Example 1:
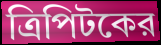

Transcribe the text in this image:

ত্রিপিটকের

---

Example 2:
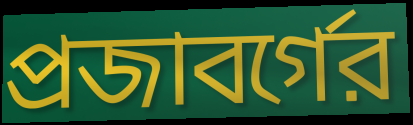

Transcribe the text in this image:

প্রজাবর্গের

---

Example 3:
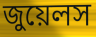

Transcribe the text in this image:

জুয়েলস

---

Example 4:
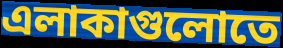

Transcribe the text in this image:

এলাকাগুলোতে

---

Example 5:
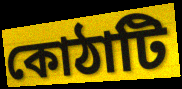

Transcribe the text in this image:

কোঠাটি